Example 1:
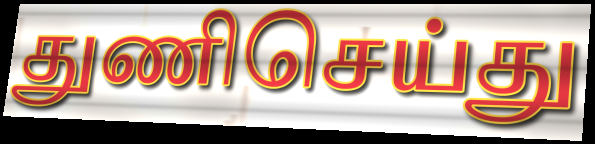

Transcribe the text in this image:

துணிசெய்து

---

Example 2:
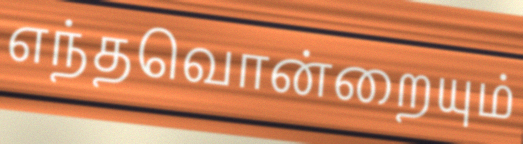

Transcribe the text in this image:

எந்தவொன்றையும்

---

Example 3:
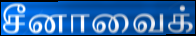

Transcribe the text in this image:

சீனாவைக்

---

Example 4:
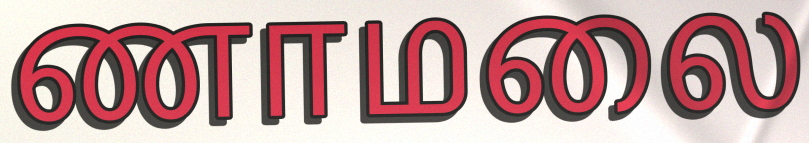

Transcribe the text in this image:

ணாமலை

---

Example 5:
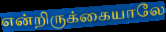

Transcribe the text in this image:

என்றிருக்கையாலே